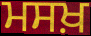
ਮਸਖ਼